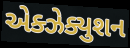
એક્ઝેક્યુશન